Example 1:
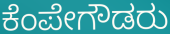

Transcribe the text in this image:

ಕೆಂಪೇಗೌಡರು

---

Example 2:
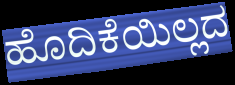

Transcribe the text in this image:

ಹೊದಿಕೆಯಿಲ್ಲದ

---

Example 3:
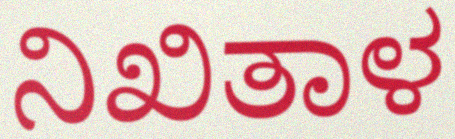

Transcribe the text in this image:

ನಿಖಿತಾಳ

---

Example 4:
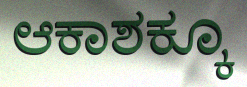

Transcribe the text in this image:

ಆಕಾಶಕ್ಕೂ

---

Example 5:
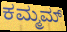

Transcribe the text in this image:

ಕಮ್ಮಮ್